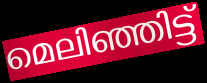
മെലിഞ്ഞിട്ട്